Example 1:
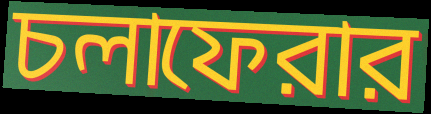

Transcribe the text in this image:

চলাফেরার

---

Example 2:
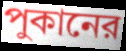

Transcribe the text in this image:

পুকানের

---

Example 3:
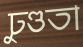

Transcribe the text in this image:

ঢুণ্ডতা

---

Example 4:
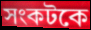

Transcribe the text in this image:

সংকটকে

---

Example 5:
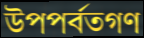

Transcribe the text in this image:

উপপর্বতগণ